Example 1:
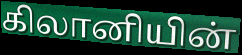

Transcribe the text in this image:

கிலானியின்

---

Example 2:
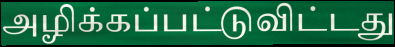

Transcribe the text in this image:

அழிக்கப்பட்டுவிட்டது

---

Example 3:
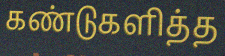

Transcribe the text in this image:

கண்டுகளித்த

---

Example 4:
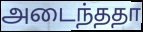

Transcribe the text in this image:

அடைந்ததா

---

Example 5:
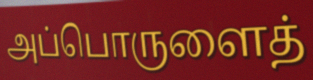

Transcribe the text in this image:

அப்பொருளைத்